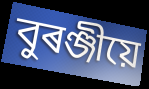
বুৰঞ্জীয়ে